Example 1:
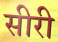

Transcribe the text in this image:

सीरी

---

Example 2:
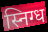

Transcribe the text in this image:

स्निग्ध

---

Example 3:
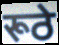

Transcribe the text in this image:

रूठे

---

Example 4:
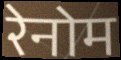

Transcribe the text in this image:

रेनोम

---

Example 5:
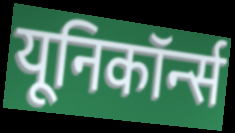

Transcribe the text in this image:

यूनिकॉर्न्स